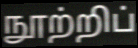
நூற்றிப்